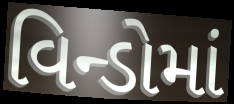
વિન્ડોમાં